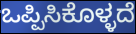
ಒಪ್ಪಿಸಿಕೊಳ್ಳದೆ